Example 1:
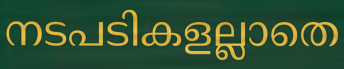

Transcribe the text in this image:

നടപടികളല്ലാതെ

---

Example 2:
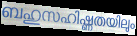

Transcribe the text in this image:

ബഹുസഹിഷ്ണതയിലും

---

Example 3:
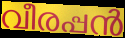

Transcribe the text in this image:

വീരപ്പൻ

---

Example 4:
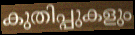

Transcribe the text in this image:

കുതിപ്പുകളും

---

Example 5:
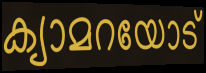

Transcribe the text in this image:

ക്യാമറയോട്